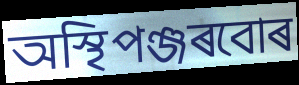
অস্থিপঞ্জৰবোৰ